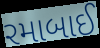
રમાબાઈ